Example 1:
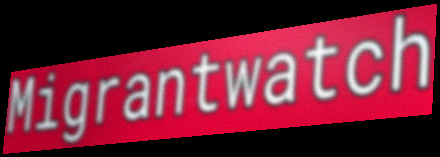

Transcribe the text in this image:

Migrantwatch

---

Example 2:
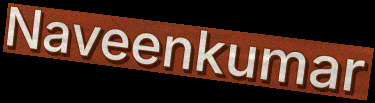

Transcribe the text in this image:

Naveenkumar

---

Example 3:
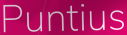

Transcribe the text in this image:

Puntius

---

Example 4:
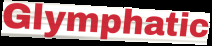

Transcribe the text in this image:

Glymphatic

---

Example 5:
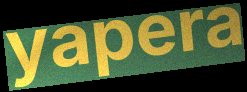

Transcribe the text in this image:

yapera